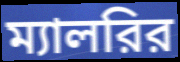
ম্যালরির